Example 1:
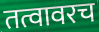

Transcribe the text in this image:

तत्वावरच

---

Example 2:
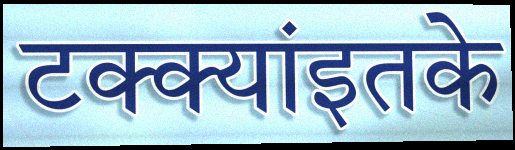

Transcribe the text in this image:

टक्क्यांइतके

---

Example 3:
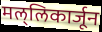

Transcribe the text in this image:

मल्लिकार्जून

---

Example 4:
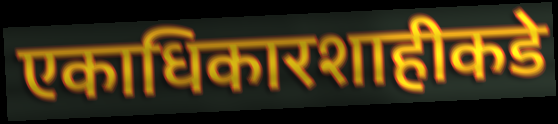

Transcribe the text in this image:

एकाधिकारशाहीकडे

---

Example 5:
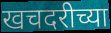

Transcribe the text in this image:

खचदरीच्या